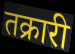
तक्रारी